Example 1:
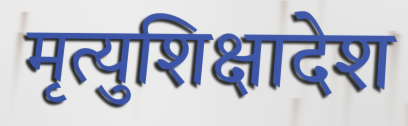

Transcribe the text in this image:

मृत्युशिक्षादेश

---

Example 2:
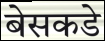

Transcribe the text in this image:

बेसकडे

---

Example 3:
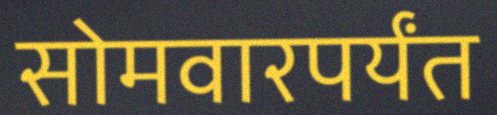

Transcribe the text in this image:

सोमवारपर्यंत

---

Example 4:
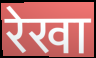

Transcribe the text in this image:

रेखा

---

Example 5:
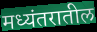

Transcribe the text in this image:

मध्यंतरातील